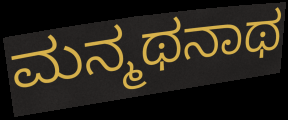
ಮನ್ಮಥನಾಥ